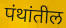
पंथांतील